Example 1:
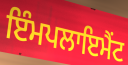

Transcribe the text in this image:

ਇੰਮਪਲਾਇਮੈਂਟ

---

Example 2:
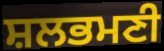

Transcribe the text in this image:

ਸ਼ਲਭਮਣੀ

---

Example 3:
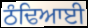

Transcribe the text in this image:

ਠੰਢਿਆਈ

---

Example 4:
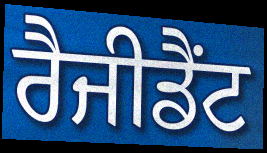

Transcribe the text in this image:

ਰੈਜੀਡੈਂਟ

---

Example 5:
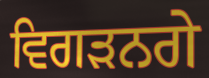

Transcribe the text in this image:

ਵਿਗੜਨਗੇ